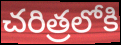
చరిత్రలోకి